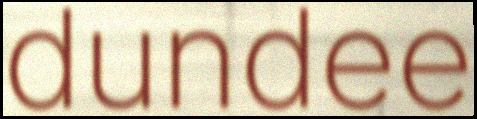
dundee